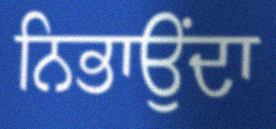
ਨਿਭਾਉਂਦਾ